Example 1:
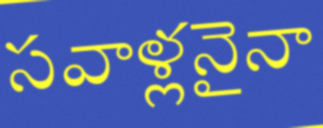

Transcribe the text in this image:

సవాళ్లనైనా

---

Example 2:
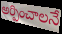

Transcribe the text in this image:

అర్పించాలనే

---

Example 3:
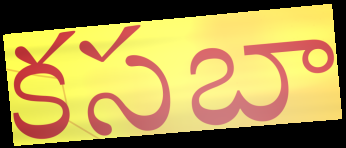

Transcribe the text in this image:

కసబా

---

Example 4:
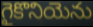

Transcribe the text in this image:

గైకొనియెను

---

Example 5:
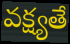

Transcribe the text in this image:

వక్ష్యతే